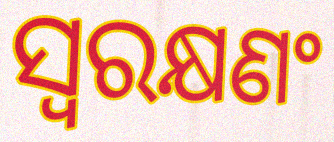
ସ୍ୱରକ୍ଷଣଂ